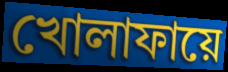
খোলাফায়ে